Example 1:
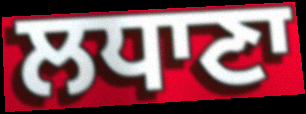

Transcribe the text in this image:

ਲਧਾਣਾ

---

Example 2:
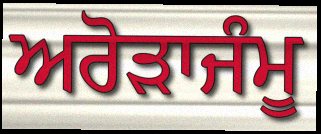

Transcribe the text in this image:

ਅਰੋੜਾਜੰਮੂ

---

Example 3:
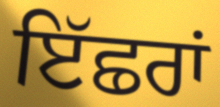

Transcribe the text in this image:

ਇੱਛਰਾਂ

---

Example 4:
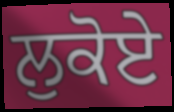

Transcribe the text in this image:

ਲੁਕੋਏ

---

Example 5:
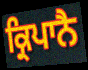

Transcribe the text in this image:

ਕ੍ਰਿਪਾਨੈ